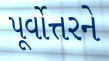
પૂર્વોત્તરને